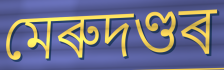
মেৰুদণ্ডৰ